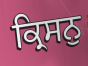
ਕ੍ਰਿਸਨੁ